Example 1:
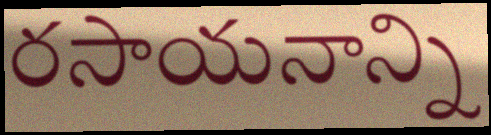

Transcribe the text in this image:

రసాయనాన్ని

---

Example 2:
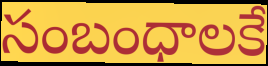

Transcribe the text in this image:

సంబంధాలకే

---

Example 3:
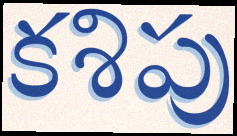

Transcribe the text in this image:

కశిపు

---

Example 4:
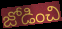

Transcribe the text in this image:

జోడించి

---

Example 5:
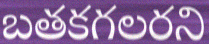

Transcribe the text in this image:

బతకగలరని